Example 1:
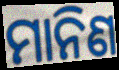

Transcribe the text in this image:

ମାନିଣ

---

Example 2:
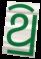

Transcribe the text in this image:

ଥ୍ରି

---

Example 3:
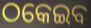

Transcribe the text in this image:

ଠକେଇବ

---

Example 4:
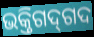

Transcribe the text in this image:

ଭକ୍ତିଗଦ୍‌ଗଦ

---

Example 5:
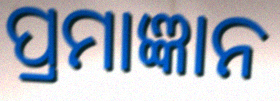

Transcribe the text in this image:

ପ୍ରମାଜ୍ଞାନ